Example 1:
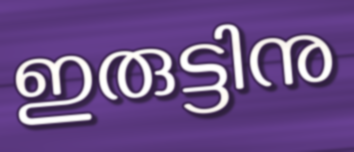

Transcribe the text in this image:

ഇരുട്ടിനു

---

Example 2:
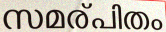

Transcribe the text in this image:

സമര്പിതം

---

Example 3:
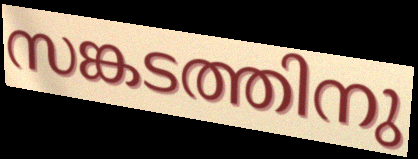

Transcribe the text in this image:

സങ്കടത്തിനു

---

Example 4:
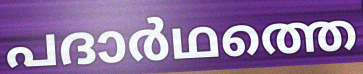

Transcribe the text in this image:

പദാർഥത്തെ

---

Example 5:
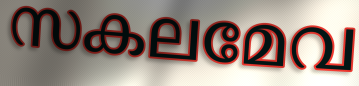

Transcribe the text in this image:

സകലമേവ